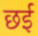
छई